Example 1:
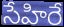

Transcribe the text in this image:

సేహిరే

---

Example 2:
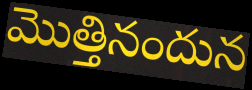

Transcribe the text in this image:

మొత్తినందున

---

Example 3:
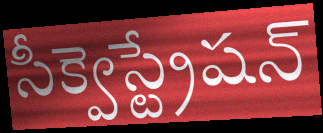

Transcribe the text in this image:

సీక్వెస్ట్రేషన్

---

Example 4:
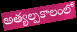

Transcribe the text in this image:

అత్యల్పకాలంలో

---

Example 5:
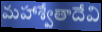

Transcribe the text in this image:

మహాశ్వేతాదేవి